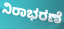
ನಿರಾಭರಣೆ